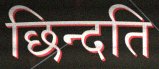
छिन्दति